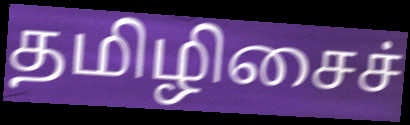
தமிழிசைச்